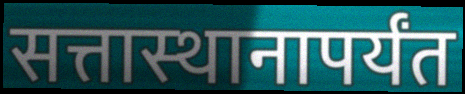
सत्तास्थानापर्यंत